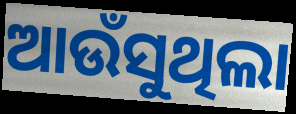
ଆଉଁସୁଥିଲା